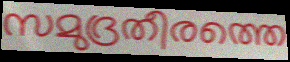
സമുദ്രതീരത്തെ